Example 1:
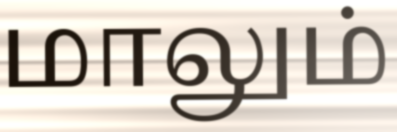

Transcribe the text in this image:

மாலும்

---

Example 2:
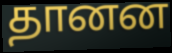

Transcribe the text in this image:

தானன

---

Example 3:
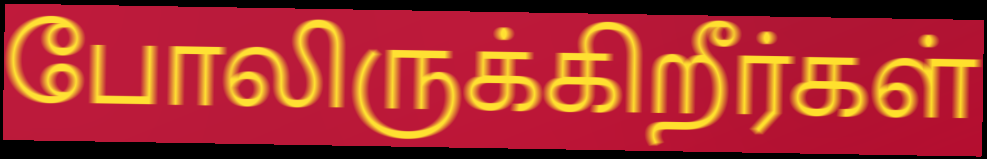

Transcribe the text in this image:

போலிருக்கிறீர்கள்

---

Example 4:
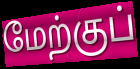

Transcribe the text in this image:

மேற்குப்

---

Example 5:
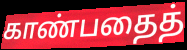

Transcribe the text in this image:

காண்பதைத்